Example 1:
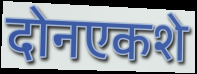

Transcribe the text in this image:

दोनएकशे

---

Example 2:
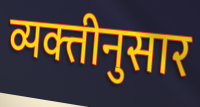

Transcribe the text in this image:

व्यक्तीनुसार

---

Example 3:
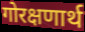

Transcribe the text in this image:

गोरक्षणार्थ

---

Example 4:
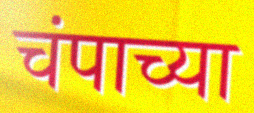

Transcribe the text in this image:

चंपाच्या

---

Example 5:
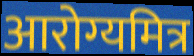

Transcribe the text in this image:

आरोग्यमित्र